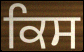
ਕਿਸ